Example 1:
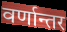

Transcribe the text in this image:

वर्णान्तर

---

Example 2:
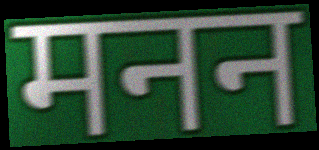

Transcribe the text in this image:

मनन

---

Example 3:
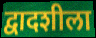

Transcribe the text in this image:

द्वादशीला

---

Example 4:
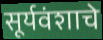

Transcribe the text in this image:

सूर्यवंशाचे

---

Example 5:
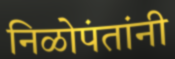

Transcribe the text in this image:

निळोपंतांनी